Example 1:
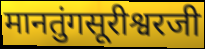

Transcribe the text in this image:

मानतुंगसूरीश्वरजी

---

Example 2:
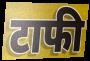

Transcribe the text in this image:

टाफी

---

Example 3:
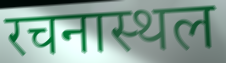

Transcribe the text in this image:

रचनास्थल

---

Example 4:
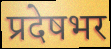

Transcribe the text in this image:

प्रदेषभर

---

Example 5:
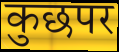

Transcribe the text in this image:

कुछपर